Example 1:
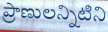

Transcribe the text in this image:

ప్రాణులన్నిటిని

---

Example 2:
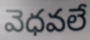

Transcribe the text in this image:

వెధవలే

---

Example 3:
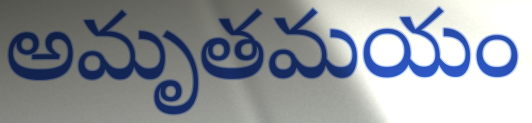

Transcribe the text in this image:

అమృతమయం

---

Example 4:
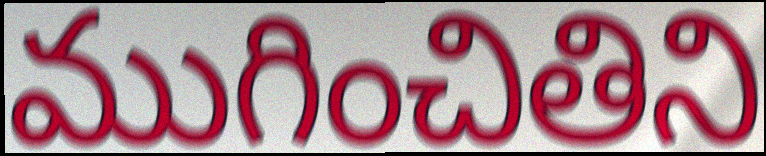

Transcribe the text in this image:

ముగించితిని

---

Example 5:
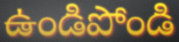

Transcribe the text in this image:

ఉండిపోండి